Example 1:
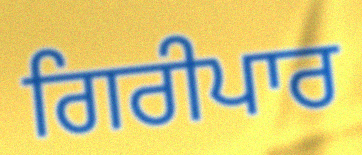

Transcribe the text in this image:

ਗਿਰੀਪਾਰ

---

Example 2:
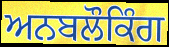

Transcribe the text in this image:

ਅਨਬਲੌਕਿੰਗ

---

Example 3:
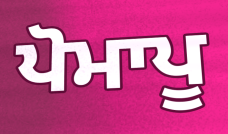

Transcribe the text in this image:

ਪੋਮਾਪੂ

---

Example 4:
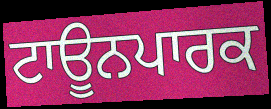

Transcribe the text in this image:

ਟਾਊਨਪਾਰਕ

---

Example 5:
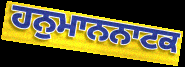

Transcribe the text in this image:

ਹਨੁਮਾਨਨਾਟਕ